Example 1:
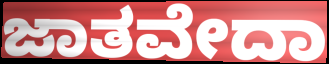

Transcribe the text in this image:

ಜಾತವೇದಾ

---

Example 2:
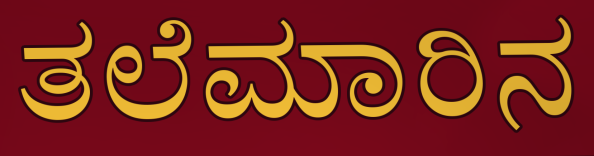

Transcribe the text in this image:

ತಲೆಮಾರಿನ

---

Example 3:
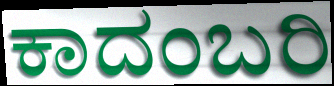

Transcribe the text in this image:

ಕಾದಂಬರಿ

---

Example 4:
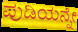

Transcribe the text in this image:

ಪುಡಿಯನ್ನೇ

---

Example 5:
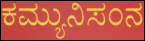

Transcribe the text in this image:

ಕಮ್ಯುನಿಸಂನ